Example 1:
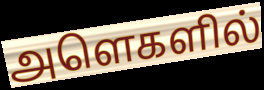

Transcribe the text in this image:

அளெகளில்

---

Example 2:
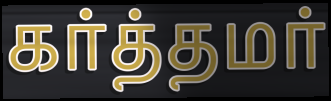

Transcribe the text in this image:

கர்த்தமர்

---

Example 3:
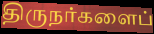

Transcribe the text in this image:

திருநர்களைப்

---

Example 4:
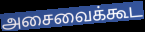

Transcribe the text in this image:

அசைவைக்கூட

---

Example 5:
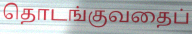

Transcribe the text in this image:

தொடங்குவதைப்